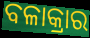
ବଳାକ୍ରାର